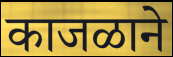
काजळाने